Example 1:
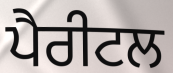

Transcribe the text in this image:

ਪੈਰੀਟਲ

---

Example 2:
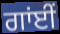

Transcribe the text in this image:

ਗਾਂਈਂ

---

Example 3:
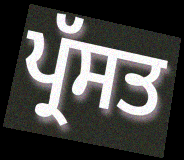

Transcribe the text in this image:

ਪ੍ਰੱਸਤ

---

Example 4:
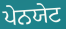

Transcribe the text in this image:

ਪੇਨਯੇਟ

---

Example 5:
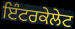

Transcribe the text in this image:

ਇੰਟਰਕੇਲੇਟ